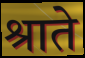
श्राते